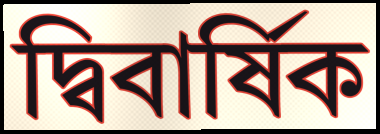
দ্বিবার্ষিক